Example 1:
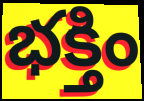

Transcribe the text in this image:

భక్తిం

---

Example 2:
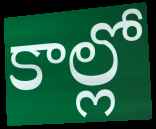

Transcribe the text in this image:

కాల్లో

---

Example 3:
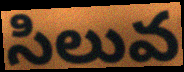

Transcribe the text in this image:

సిలువ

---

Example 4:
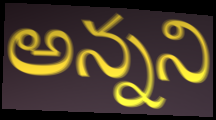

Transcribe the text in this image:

అన్నని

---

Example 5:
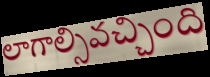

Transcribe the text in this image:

లాగాల్సివచ్చింది